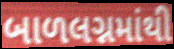
બાળલગ્નમાંથી